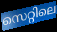
സെറ്റിലെ